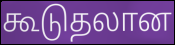
கூடுதலான